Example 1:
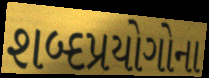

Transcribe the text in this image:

શબ્દપ્રયોગોના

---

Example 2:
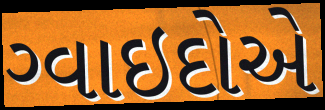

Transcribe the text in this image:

ગ્વાઇદોએ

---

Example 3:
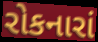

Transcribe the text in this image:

રોકનારાં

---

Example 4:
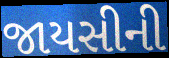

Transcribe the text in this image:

જાયસીની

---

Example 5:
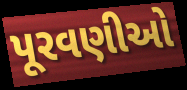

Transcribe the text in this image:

પૂરવણીઓ